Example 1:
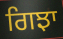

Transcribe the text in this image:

ਗਿਝਾ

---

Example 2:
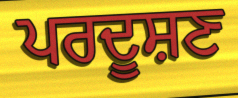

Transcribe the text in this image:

ਪਰਦੂਸ਼ਣ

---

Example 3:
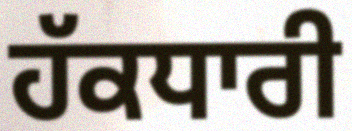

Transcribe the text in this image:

ਹੱਕਧਾਰੀ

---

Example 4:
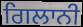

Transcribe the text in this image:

ਗਿਲਾਨੀ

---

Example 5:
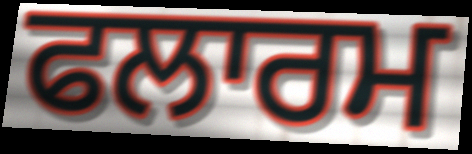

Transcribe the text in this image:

ਫਲਾਰਮ